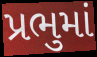
પ્રભુમાં